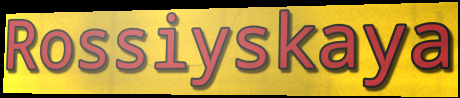
Rossiyskaya